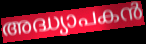
അദ്ധ്യാപകൻ